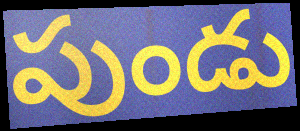
పుండు